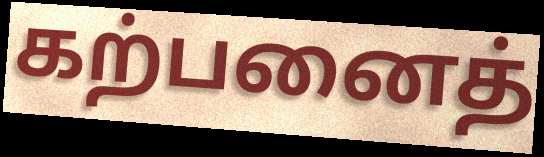
கற்பனைத்